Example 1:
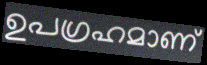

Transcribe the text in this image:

ഉപഗ്രഹമാണ്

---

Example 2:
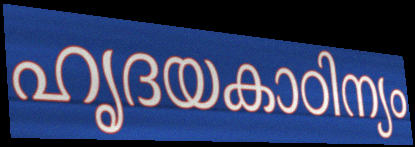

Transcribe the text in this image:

ഹൃദയകാഠിന്യം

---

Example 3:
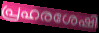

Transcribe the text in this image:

പ്രഹരശേഷി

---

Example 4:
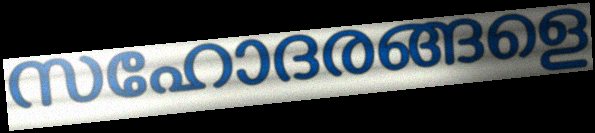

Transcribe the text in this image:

സഹോദരങ്ങളെ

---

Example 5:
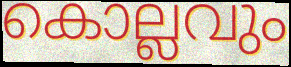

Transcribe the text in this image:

കൊല്ലവും